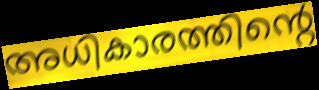
അധികാരത്തിന്റെ